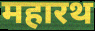
महारथ